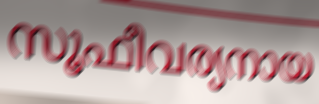
സൂഫീവര്യനായ